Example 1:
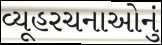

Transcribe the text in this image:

વ્યૂહરચનાઓનું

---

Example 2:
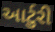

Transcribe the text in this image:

આર્ટુરી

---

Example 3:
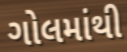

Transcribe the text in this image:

ગોલમાંથી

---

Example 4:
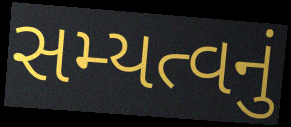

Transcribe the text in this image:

સમ્યત્વનું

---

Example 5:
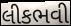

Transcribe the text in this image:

લીકભવી